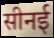
सीनई